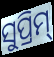
ସୁପ୍ରିମ୍